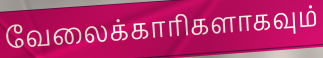
வேலைக்காரிகளாகவும்